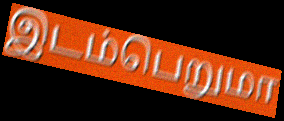
இடம்பெறுமா